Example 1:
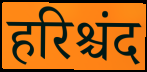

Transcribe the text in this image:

हरिश्चंद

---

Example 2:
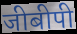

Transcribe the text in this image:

जीबीपी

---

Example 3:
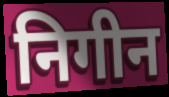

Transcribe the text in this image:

निगीन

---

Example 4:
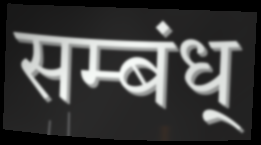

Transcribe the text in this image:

सम्बंध्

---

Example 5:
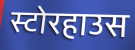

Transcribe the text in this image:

स्टोरहाउस